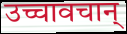
उच्चावचान्